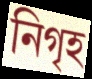
নিগৃহ